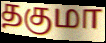
தகுமா